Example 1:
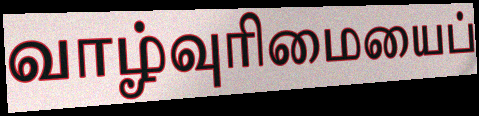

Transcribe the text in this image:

வாழ்வுரிமையைப்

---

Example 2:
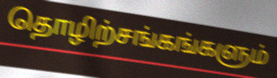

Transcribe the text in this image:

தொழிற்சங்கங்களும்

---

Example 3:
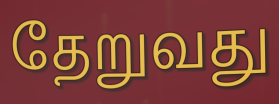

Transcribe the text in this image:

தேறுவது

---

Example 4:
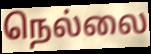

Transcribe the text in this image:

நெல்லை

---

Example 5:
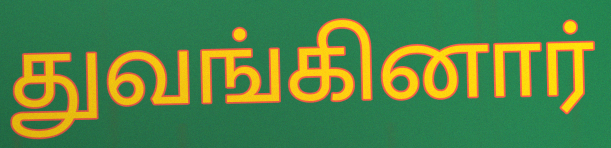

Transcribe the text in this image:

துவங்கினார்